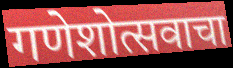
गणेशोत्सवाचा